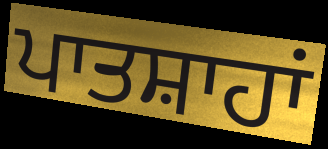
ਪਾਤਸ਼ਾਹਾਂ